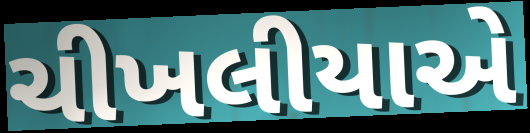
ચીખલીયાએ